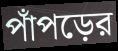
পাঁপড়ের